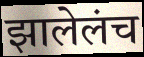
झालेलंच